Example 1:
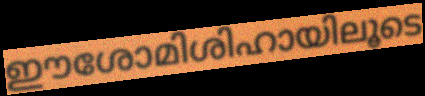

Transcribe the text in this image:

ഈശോമിശിഹായിലൂടെ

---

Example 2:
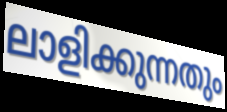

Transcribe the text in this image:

ലാളിക്കുന്നതും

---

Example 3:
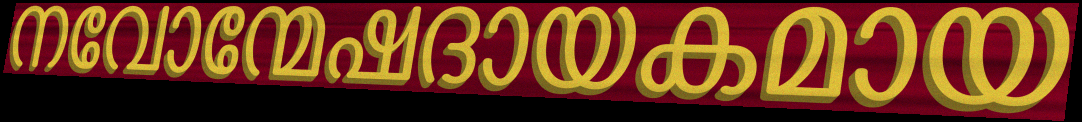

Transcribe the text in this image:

നവോന്മേഷദായകമായ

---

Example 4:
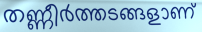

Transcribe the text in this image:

തണ്ണീർത്തടങ്ങളാണ്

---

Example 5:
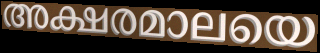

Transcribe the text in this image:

അക്ഷരമാലയെ